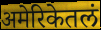
अमेरिकेतलं